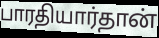
பாரதியார்தான்